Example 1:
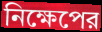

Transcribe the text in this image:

নিক্ষেপের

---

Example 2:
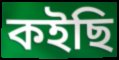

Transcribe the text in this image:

কইছি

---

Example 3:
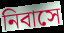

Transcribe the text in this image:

নিবাসে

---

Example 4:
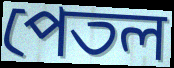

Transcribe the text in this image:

পেতল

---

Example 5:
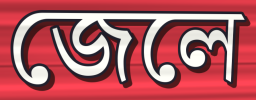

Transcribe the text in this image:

জেলে